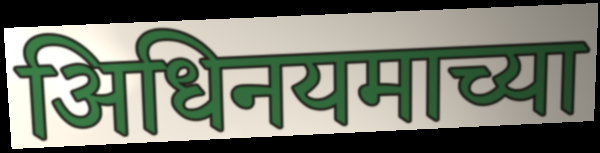
अिधिनयमाच्या